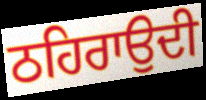
ਠਹਿਰਾਉਦੀ